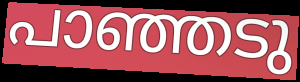
പാഞ്ഞടു